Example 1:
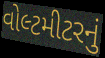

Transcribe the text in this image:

વોલ્ટમીટરનું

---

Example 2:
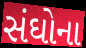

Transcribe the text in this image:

સંઘોના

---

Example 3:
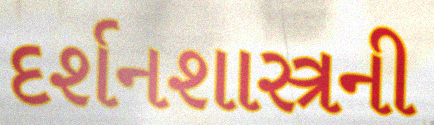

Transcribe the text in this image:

દર્શનશાસ્ત્રની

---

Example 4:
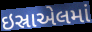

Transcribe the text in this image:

ઇસ્રાએલમાં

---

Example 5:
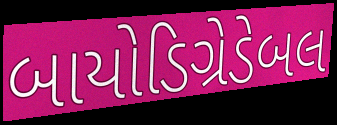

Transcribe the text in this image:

બાયોડિગ્રેડેબલ